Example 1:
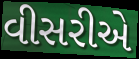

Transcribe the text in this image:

વીસરીએ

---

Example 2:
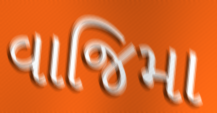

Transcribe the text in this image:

વાજિમા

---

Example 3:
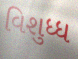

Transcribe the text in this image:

વિશુધ્ધ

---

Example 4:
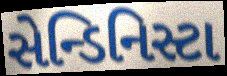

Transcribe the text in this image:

સેન્ડિનિસ્ટા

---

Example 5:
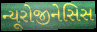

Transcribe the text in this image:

ન્યૂરોજીનેસિસ